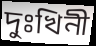
দুঃখিনী